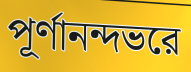
পূর্ণানন্দভরে